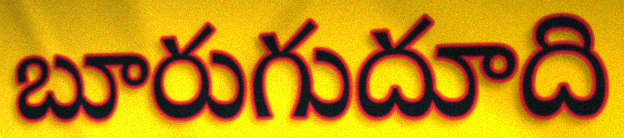
బూరుగుదూది